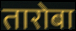
तारोबा